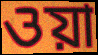
ওয়া